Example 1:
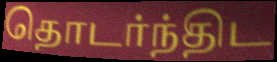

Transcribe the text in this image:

தொடர்ந்திட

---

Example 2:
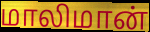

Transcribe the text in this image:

மாலிமான்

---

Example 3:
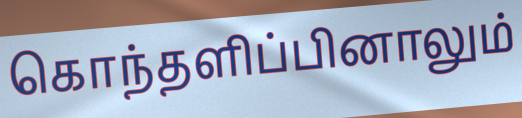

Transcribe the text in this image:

கொந்தளிப்பினாலும்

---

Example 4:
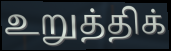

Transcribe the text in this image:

உறுத்திக்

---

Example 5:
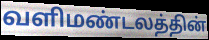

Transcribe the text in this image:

வளிமண்டலத்தின்